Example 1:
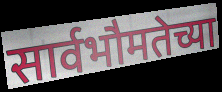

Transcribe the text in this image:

सार्वभौमतेच्या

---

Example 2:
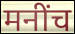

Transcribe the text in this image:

मनींच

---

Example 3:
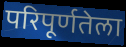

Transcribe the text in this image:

परिपूर्णतेला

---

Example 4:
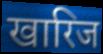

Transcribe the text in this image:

खारिज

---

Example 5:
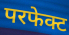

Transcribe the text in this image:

परफेक्ट